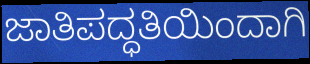
ಜಾತಿಪದ್ಧತಿಯಿಂದಾಗಿ